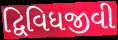
દ્વિવિધજીવી